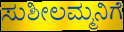
ಸುಶೀಲಮ್ಮನಿಗೆ